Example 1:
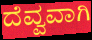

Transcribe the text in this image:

ದೆವ್ವವಾಗಿ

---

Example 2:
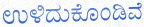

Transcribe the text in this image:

ಉಳಿದುಕೊಂಡಿವೆ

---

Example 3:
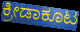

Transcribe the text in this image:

ಕ್ರೀಡಾಕೂಟ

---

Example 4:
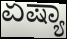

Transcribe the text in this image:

ಏಷ್ಯಾ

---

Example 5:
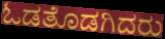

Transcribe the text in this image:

ಓಡತೊಡಗಿದರು